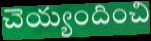
చెయ్యందించి